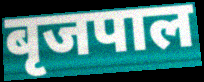
बृजपाल